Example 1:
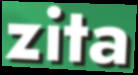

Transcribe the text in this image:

zita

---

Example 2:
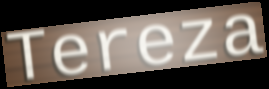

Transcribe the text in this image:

Tereza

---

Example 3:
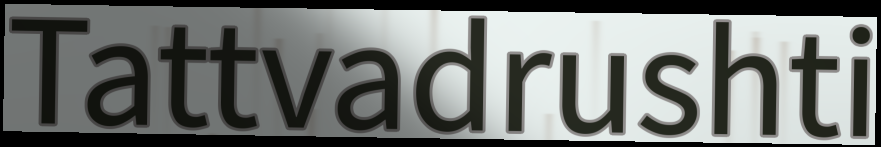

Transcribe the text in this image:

Tattvadrushti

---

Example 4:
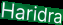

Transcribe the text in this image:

Haridra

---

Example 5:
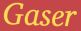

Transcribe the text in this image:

Gaser